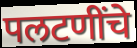
पलटणींचे